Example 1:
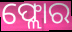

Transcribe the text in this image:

ଫ୍ଲୋର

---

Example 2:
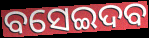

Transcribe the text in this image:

ବସେଇଦବ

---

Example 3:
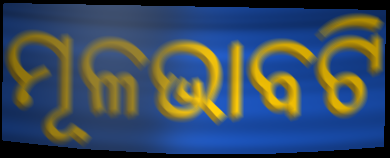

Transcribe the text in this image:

ମୂଳଭାବଟି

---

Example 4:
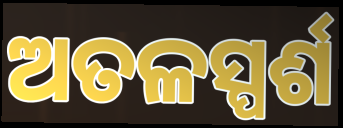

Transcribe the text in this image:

ଅତଳସ୍ପର୍ଶ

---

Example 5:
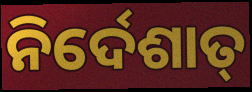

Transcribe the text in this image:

ନିର୍ଦେଶାତ୍